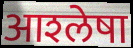
आश्‍लेषा